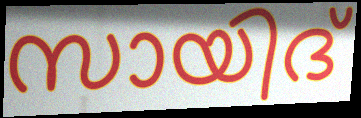
സായിദ്